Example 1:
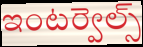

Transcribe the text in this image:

ఇంటర్వెల్స్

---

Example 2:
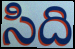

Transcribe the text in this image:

సిది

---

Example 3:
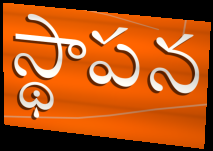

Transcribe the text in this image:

స్థాపన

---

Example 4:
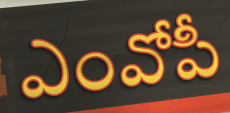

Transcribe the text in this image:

ఎంవోపీ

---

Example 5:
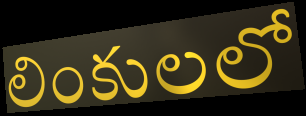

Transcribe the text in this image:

లింకులలో